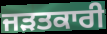
ਜੜਤਕਾਰੀ